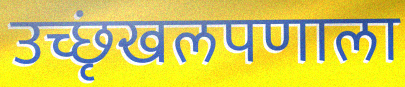
उच्छृंखलपणाला